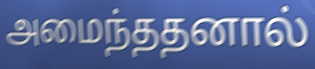
அமைந்ததனால்